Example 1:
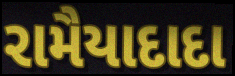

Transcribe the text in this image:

રામૈયાદાદા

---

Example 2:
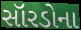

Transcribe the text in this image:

સૉરડોના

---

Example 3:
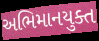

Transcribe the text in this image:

અભિમાનયુક્ત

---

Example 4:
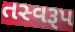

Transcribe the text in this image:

તસ્વરૂપ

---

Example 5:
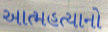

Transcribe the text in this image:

આત્મહત્યાનો